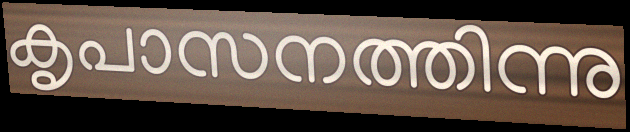
കൃപാസനത്തിന്നു